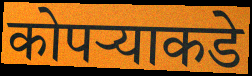
कोपऱ्याकडे